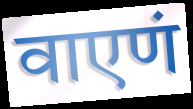
वाएणं